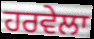
ਹਰਵੇਲਾ